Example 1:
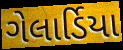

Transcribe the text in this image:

ગેલાર્ડિયા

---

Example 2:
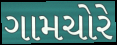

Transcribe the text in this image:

ગામચોરે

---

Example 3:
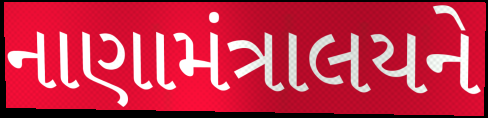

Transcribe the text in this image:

નાણામંત્રાલયને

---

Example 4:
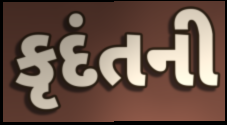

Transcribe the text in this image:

કૃદંતની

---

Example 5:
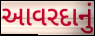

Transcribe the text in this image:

આવરદાનું